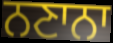
ਨਣਾਨਾ